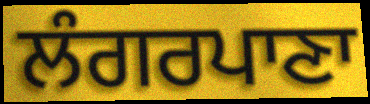
ਲੰਗਰਪਾਣਾ